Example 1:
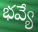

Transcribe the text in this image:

భవ్యే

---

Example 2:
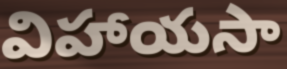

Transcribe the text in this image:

విహాయసా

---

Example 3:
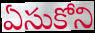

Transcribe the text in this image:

ఏసుకోని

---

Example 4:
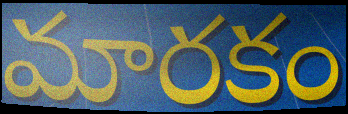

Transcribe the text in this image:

మారకం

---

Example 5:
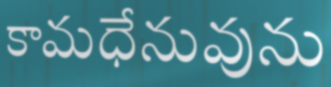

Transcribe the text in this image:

కామధేనువును